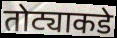
तोट्याकडे